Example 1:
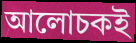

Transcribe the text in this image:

আলোচকই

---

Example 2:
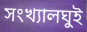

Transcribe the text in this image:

সংখ্যালঘুই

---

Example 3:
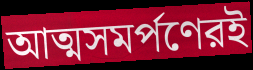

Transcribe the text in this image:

আত্মসমর্পণেরই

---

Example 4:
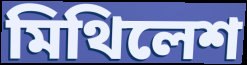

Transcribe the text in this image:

মিথিলেশ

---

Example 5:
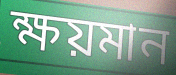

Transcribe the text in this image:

ক্ষয়মান